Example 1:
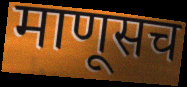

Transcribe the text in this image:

माणूसच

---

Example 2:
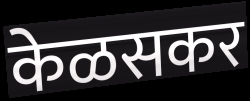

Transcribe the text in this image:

केळसकर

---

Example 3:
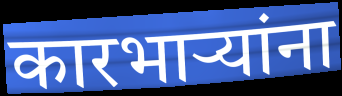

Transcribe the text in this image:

कारभाऱ्यांना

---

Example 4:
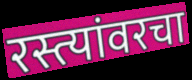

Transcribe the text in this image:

रस्त्यांवरचा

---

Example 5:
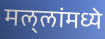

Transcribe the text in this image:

मल्लांमध्ये